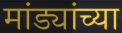
मांड्यांच्या